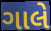
ગાલે